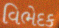
વિભેદક